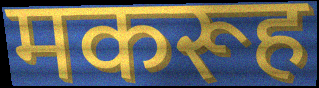
मकरूह